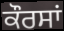
ਕੌਰਸਾਂ